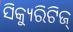
ସିକ୍ୟୁରିଟିଜ୍